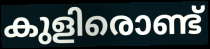
കുളിരൊണ്ട്